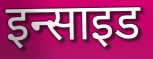
इन्साइड